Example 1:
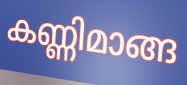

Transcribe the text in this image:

കണ്ണിമാങ്ങ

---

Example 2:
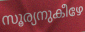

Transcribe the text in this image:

സൂര്യനുകീഴേ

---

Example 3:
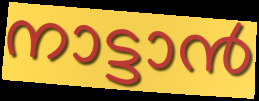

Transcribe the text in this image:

നാട്ടാൻ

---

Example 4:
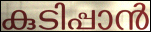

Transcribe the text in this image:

കുടിപ്പാൻ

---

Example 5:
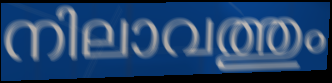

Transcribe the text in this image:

നിലാവത്തും